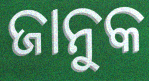
ଜାନୁକ